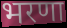
भरणा